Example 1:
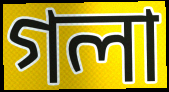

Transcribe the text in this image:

গলা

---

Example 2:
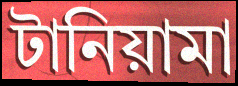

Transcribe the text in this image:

টানিয়ামা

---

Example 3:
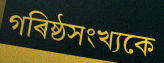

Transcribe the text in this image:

গৰিষ্ঠসংখ্যকে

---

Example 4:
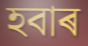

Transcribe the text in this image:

হবাৰ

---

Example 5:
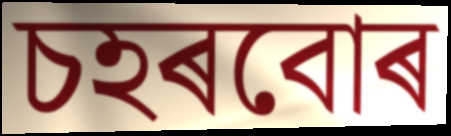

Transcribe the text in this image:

চহৰবোৰ